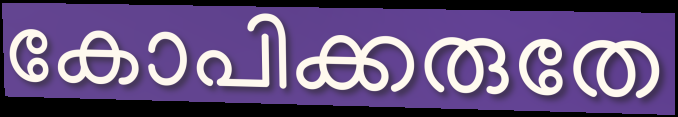
കോപിക്കരുതേ